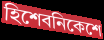
হিশেবনিকেশে